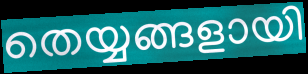
തെയ്യങ്ങളായി